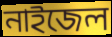
নাইজেল